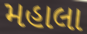
મહાલા